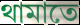
থামাতে